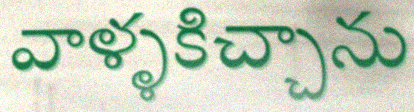
వాళ్ళకిచ్చాను